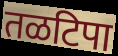
तळटिपा